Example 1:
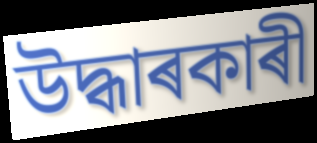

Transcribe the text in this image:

উদ্ধাৰকাৰী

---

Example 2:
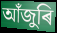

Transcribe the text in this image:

আঁজুৰি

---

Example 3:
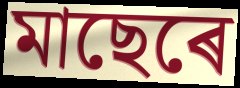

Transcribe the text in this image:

মাছেৰে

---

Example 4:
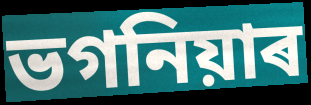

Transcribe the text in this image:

ভগনিয়াৰ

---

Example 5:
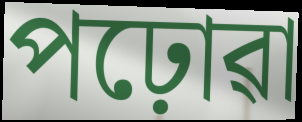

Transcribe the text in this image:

পঢ়োৱা